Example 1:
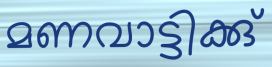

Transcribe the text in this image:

മണവാട്ടിക്കു്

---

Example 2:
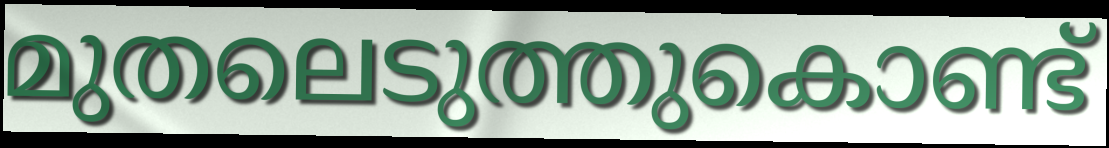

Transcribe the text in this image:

മുതലെടുത്തുകൊണ്ട്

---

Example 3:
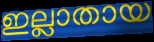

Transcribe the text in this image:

ഇല്ലാതായ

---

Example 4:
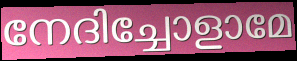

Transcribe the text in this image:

നേദിച്ചോളാമേ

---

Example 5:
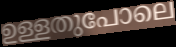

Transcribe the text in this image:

ഉള്ളതുപോലെ